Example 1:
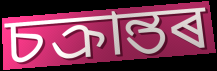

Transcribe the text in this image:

চক্ৰান্তৰ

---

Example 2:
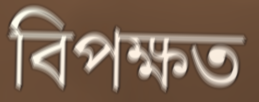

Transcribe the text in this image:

বিপক্ষত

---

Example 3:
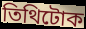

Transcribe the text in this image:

তিথিটোক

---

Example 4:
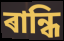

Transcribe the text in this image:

ৰান্ধি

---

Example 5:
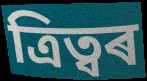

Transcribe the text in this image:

ত্ৰিত্বৰ